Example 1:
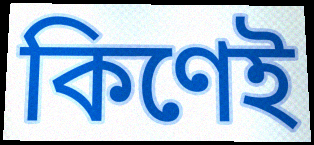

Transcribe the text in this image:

কিণেই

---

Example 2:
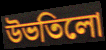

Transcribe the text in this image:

উভতিলো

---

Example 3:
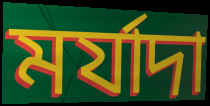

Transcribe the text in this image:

মৰ্যাদা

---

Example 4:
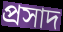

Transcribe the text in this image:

প্ৰসাদ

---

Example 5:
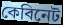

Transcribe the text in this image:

কেবিনেট